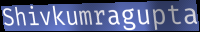
Shivkumragupta